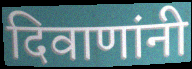
दिवाणांनी